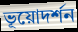
ভূয়োদর্শন